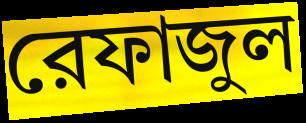
রেফাজুল